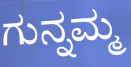
ಗುನ್ನಮ್ಮ